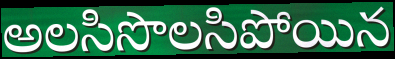
అలసిసొలసిపోయిన